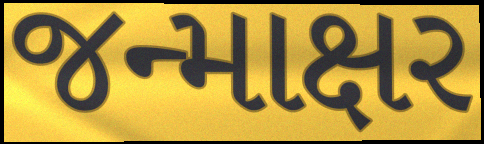
જન્માક્ષર